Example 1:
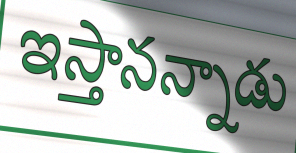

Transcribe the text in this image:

ఇస్తానన్నాడు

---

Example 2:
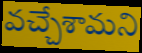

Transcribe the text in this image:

వచ్చేశామని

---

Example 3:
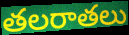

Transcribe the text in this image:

తలరాతలు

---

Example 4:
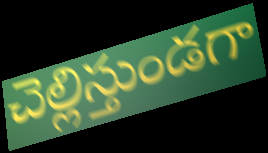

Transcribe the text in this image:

చెల్లిస్తుండగా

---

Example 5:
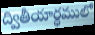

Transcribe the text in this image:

ద్వితీయార్ధములో